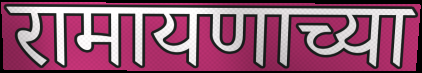
रामायणाच्या